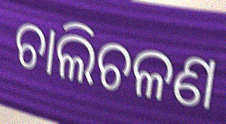
ଚାଲିଚଳଣ